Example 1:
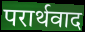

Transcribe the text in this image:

परार्थवाद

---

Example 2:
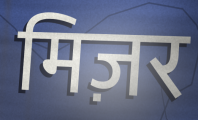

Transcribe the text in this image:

मिज़र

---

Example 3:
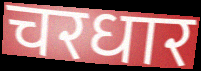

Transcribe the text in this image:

चरधार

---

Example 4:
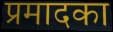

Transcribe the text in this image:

प्रमादका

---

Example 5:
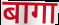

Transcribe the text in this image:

बागा